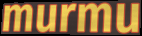
murmu